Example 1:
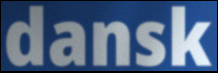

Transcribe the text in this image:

dansk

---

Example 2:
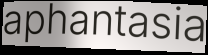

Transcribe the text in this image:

aphantasia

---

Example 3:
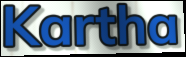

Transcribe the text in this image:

Kartha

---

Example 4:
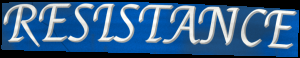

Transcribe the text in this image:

RESISTANCE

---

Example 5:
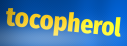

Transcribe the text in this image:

tocopherol